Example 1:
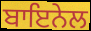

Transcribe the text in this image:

ਬਾਇਨੇਲ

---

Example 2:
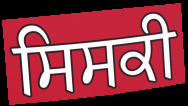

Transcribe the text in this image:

ਸਿਸਕੀ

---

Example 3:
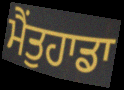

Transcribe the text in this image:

ਮੈਂਤੁਹਾਡਾ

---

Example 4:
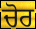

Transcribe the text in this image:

ਚੋਰ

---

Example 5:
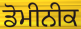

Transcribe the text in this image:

ਡੋਮੀਨੀਕ